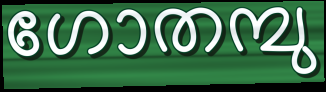
ഗോതമ്പു